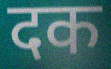
दक